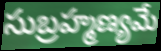
సుబ్రహ్మణ్యమే